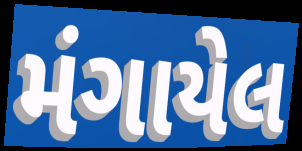
મંગાયેલ